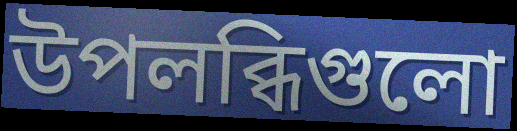
উপলব্ধিগুলো